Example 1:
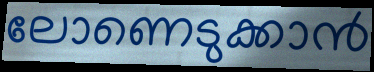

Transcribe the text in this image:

ലോണെടുക്കാൻ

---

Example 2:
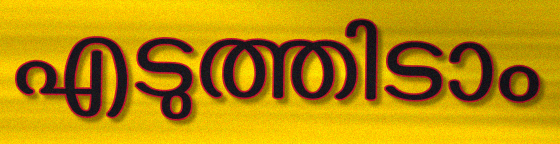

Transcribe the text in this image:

എടുത്തിടാം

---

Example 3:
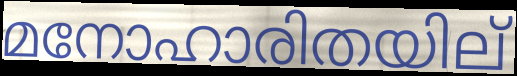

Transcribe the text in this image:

മനോഹാരിതയില്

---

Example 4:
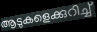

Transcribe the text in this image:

ആടുകളെക്കുറിച്ച്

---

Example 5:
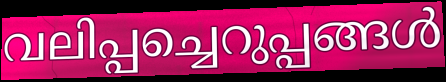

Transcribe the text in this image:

വലിപ്പച്ചെറുപ്പങ്ങൾ